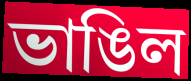
ভাঙিল